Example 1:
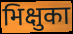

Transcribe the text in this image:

भिक्षुका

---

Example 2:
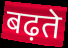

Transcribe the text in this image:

बढ़ते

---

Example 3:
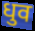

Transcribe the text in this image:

धुव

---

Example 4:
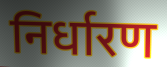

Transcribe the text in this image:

निर्धारण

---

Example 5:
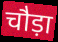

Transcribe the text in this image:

चौड़ा